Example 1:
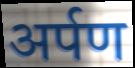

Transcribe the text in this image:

अर्पण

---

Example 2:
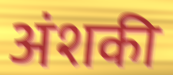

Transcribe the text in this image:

अंशकी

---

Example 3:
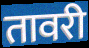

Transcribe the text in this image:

तावरी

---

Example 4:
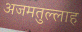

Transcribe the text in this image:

अजमतुल्लाह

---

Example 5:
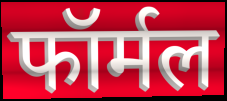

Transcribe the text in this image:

फॉर्मल